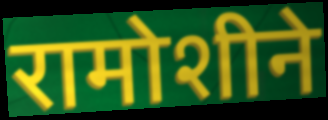
रामोशीने